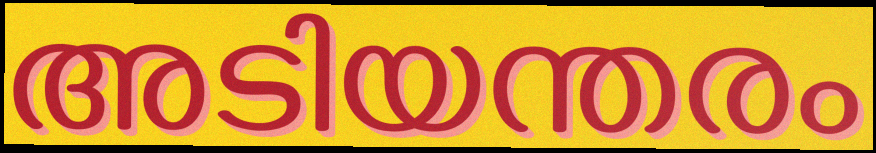
അടിയന്തരം